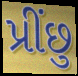
પ્રીંછુ